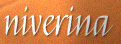
niverina